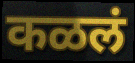
कळलं